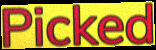
Picked